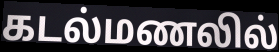
கடல்மணலில்